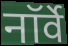
नॉर्वे